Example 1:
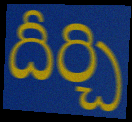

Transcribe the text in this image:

దీర్చి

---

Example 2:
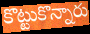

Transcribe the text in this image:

కొట్టుకొన్నారు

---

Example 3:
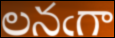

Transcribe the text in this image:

లనఁగా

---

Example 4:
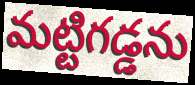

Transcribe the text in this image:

మట్టిగడ్డను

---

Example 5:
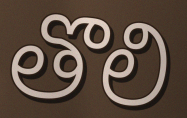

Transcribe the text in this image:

తొలి